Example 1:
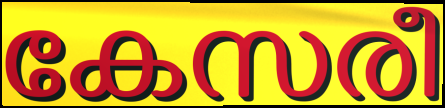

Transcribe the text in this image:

കേസരീ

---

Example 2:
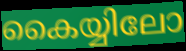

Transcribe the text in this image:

കൈയ്യിലോ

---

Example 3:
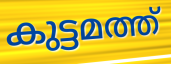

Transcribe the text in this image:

കുട്ടമത്ത്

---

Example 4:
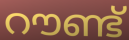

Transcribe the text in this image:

റൗണ്ട്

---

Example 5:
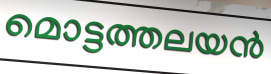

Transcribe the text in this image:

മൊട്ടത്തലയൻ